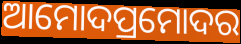
ଆମୋଦପ୍ରମୋଦର